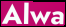
Alwa